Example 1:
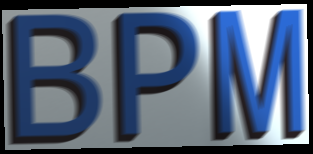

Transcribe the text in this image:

BPM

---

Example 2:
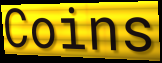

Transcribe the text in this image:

Coins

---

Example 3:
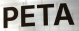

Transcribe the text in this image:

PETA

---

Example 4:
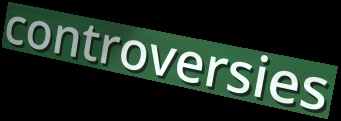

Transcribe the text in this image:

controversies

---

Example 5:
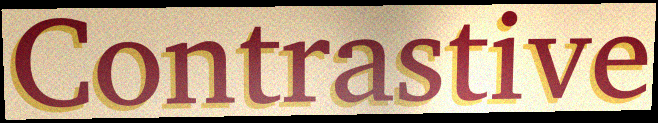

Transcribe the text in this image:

Contrastive